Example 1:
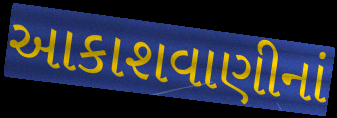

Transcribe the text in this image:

આકાશવાણીનાં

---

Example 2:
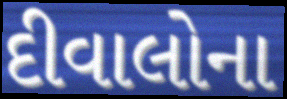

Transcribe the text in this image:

દીવાલોના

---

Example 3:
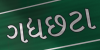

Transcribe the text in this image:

ગદ્યછટા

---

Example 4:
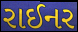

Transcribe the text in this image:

રાઈનર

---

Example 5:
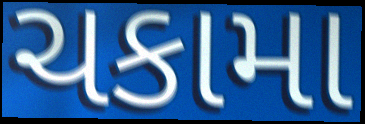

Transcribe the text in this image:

ચકામા